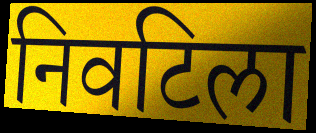
निवटिला